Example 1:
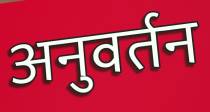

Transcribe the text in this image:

अनुवर्तन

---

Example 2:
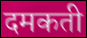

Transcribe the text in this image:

दमकती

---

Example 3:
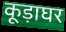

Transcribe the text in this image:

कूड़ाघर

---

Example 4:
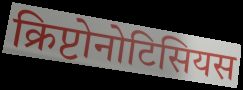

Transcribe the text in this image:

क्रिप्टोनोटिसियस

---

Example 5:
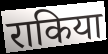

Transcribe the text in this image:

राकिया